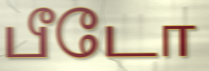
பீடோ